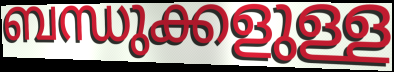
ബന്ധുക്കളുള്ള